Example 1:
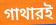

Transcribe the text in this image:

গাথারই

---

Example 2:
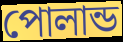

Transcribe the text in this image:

পোলান্ড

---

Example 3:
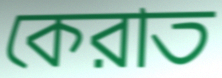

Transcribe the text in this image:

কেরাত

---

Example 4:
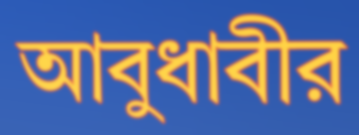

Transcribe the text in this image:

আবুধাবীর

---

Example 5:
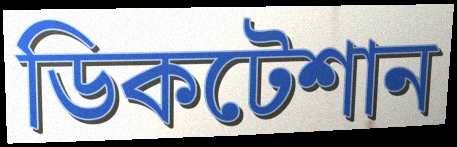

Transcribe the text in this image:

ডিকটেশান